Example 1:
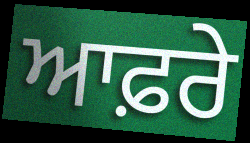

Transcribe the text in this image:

ਆਫ਼ਰੇ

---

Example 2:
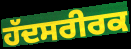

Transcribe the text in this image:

ਹੱਦਸਰੀਰਕ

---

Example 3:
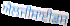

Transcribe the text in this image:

ਐਲਜੀਸਾਈਡਸ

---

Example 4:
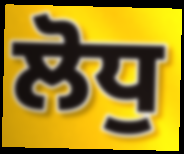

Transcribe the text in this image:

ਲੋਧੁ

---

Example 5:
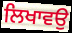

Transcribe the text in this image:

ਲਿਖਾਵਉ